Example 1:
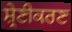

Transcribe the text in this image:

ਸ਼੍ਰੇਣੀਕਰਣ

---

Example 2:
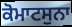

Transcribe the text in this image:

ਕੋਮਾਟਸੁਨਾ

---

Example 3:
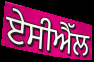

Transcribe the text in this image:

ਏਸੀਐੱਲ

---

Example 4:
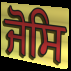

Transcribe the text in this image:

ਜੋਸਿ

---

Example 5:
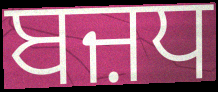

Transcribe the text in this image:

ਬਜ਼ਧ